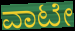
ವಾಟೇ